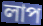
লাপ